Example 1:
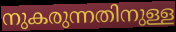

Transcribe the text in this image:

നുകരുന്നതിനുള്ള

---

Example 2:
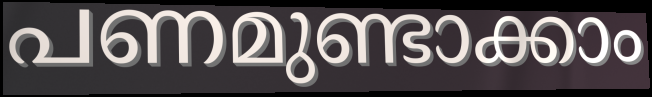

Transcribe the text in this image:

പണമുണ്ടാക്കാം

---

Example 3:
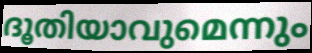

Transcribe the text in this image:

ദൂതിയാവുമെന്നും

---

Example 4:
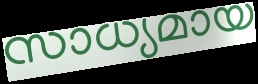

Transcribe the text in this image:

സാധ്യമായ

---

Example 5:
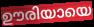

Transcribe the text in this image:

ഊരിയായെ